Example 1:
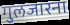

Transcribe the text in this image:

गुलजारना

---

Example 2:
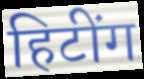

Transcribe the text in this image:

हिटींग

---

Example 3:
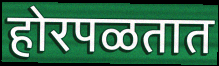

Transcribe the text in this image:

होरपळतात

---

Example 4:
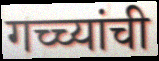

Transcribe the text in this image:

गच्च्यांची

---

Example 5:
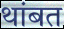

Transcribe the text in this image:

थांबत